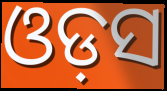
ଓଡ଼ସ